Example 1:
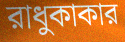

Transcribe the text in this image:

রাধুকাকার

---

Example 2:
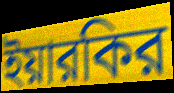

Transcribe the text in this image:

ইয়ারকির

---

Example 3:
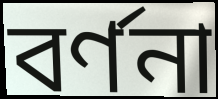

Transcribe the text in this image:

বর্ণনা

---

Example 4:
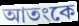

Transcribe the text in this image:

আতংকে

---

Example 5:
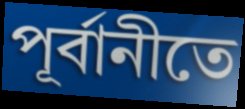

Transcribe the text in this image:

পূর্বানীতে